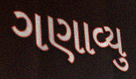
ગણાવ્યુ